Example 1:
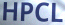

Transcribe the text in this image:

HPCL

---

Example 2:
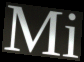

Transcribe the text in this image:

Mi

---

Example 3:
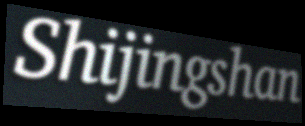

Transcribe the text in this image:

Shijingshan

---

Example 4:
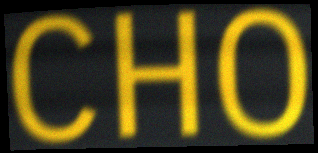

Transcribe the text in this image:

CHO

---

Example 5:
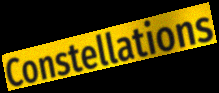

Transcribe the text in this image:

Constellations